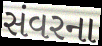
સંવરના